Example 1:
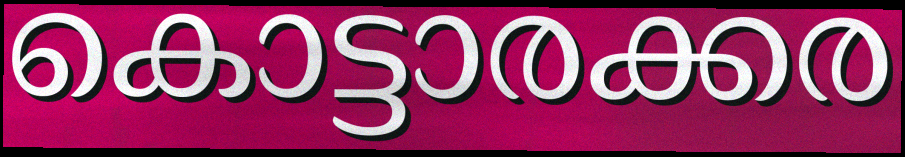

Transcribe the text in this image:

കൊട്ടാരക്കര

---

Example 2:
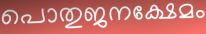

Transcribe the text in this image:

പൊതുജനക്ഷേമം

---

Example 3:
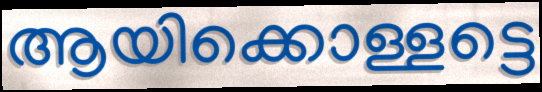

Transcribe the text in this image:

ആയിക്കൊള്ളട്ടെ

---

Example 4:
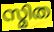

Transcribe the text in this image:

സ്മിത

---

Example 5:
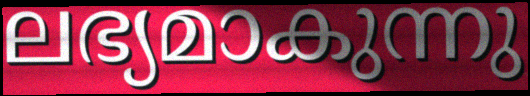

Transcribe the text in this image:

ലഭ്യമാകുന്നു